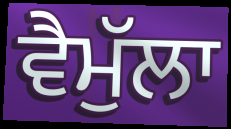
ਵੈਮੁੱਲਾ